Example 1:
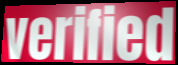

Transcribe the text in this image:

verified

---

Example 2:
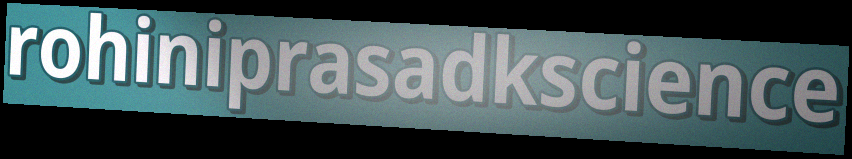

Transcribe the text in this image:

rohiniprasadkscience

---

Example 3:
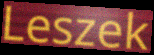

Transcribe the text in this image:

Leszek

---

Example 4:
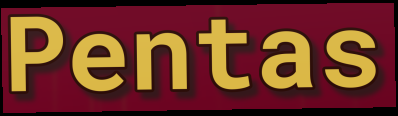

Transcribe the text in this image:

Pentas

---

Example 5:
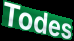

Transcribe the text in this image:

Todes